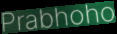
Prabhoho